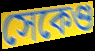
সেকেণ্ড